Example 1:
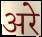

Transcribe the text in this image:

अरे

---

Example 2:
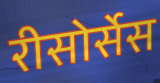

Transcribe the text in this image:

रीसोर्सेस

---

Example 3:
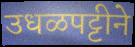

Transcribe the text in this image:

उधळपट्टीने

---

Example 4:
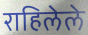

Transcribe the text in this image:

राहिलेले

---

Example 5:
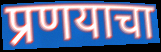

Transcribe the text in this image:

प्रणयाचा